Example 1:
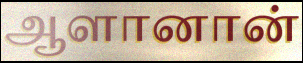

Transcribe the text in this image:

ஆளானான்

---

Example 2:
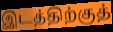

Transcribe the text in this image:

இடத்திற்குத்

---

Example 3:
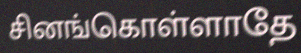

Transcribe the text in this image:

சினங்கொள்ளாதே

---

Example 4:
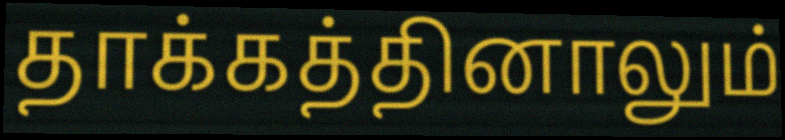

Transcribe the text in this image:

தாக்கத்தினாலும்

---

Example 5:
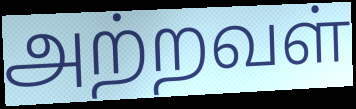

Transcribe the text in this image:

அற்றவள்